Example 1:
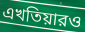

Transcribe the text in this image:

এখতিয়ারও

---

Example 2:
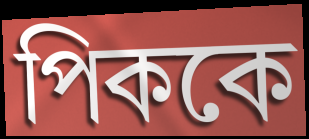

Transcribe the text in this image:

পিককে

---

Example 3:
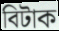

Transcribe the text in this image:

বিটাক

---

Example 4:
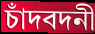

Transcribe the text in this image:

চাঁদবদনী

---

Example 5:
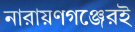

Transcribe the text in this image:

নারায়ণগঞ্জেরই